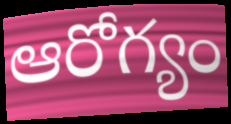
ఆరోగ్యం